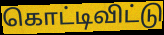
கொட்டிவிட்டு